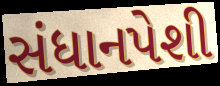
સંધાનપેશી